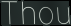
Thou